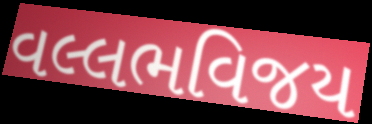
વલ્લભવિજય